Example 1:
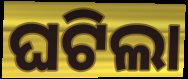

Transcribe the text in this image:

ଘଟିଲା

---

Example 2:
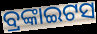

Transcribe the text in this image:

ବ୍ରଙ୍କାଇଟସ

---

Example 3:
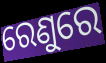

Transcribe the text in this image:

ରେଣୁରେ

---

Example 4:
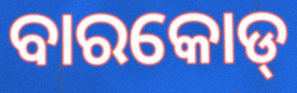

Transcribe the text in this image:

ବାରକୋଡ୍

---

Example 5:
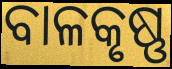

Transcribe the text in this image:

ବାଳକୃଷ୍ଣ